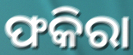
ଫକିରା